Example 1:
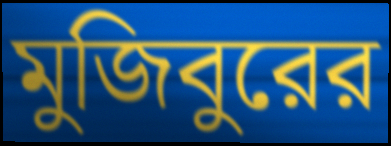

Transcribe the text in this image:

মুজিবুরের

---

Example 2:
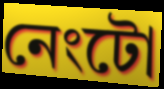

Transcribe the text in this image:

নেংটো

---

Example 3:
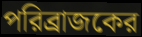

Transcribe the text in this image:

পরিব্রাজকের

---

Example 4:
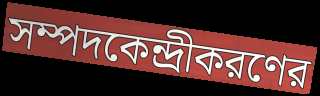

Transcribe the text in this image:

সম্পদকেন্দ্রীকরণের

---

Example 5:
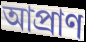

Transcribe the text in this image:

আপ্রাণ